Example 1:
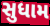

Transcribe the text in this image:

સુધામ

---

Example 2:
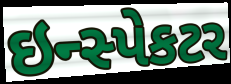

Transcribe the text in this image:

ઇન્સ્પેકટર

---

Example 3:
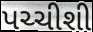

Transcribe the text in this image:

પચ્ચીશી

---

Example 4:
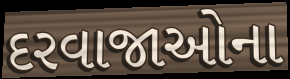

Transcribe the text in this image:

દરવાજાઓના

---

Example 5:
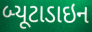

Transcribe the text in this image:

બ્યૂટાડાઇન